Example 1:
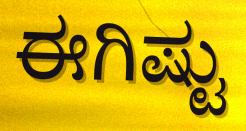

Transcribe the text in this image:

ಈಗಿಷ್ಟು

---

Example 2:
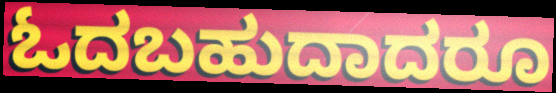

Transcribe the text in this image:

ಓದಬಹುದಾದರೂ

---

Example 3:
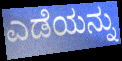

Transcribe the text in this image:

ಎಡೆಯನ್ನು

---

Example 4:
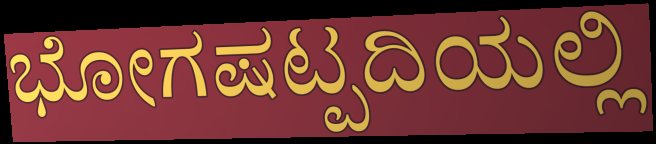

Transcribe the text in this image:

ಭೋಗಷಟ್ಪದಿಯಲ್ಲಿ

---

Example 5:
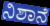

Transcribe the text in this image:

ನಿಶಾನೆ